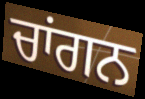
ਚਾਂਗਨ